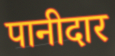
पानीदार